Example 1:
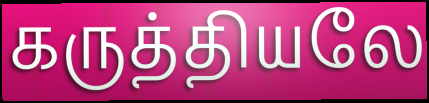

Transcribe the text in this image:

கருத்தியலே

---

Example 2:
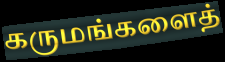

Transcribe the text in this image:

கருமங்களைத்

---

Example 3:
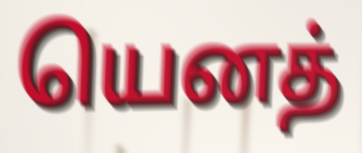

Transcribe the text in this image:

யெனத்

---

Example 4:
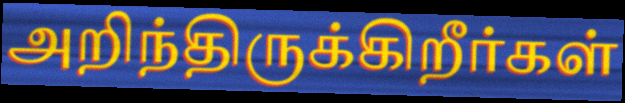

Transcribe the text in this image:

அறிந்திருக்கிறீர்கள்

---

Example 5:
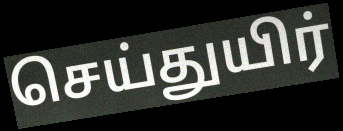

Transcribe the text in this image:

செய்துயிர்